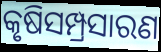
କୃଷିସମ୍ପ୍ରସାରଣ